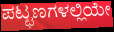
ಪಟ್ಟಣಗಳಲ್ಲಿಯೇ